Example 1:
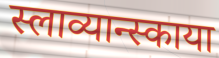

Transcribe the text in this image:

स्लाव्यान्स्काया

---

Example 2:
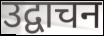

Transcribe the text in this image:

उद्वाचन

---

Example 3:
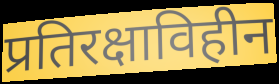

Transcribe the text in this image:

प्रतिरक्षाविहीन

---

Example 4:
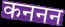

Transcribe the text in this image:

कननन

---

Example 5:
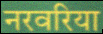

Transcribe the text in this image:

नरवरिया